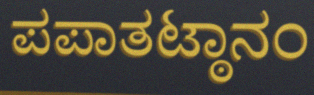
ಪಪಾತಟ್ಠಾನಂ